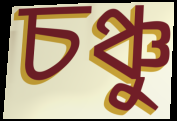
চঞ্চু